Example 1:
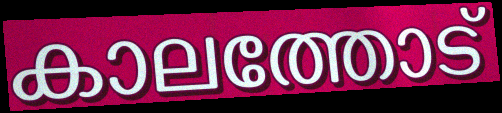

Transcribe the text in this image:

കാലത്തോട്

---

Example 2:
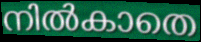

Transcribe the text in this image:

നിൽകാതെ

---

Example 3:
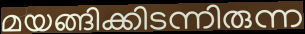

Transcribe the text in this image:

മയങ്ങിക്കിടന്നിരുന്ന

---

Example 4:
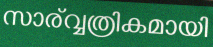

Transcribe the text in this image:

സാര്വ്വത്രികമായി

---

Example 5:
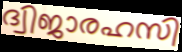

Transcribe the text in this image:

ദ്വിജാരഹസി